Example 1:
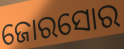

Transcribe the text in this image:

ଜୋରସୋର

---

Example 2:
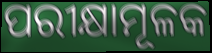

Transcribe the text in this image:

ପରୀକ୍ଷାମୂଳକ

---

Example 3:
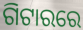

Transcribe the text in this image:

ଗିଟାରରେ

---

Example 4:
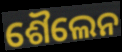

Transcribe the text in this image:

ଶୈଲେନ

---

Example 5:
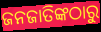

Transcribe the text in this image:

ଜନଜାତିଙ୍କଠାରୁ